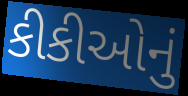
કીકીઓનું